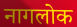
नागलोक